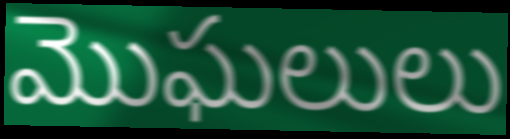
మొఘలులు